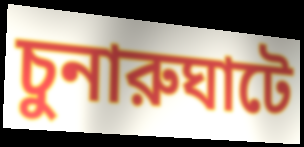
চুনারুঘাটে